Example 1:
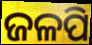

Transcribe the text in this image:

ଜଳପି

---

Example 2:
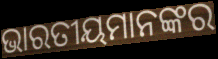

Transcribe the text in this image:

ଭାରତୀୟମାନଙ୍କର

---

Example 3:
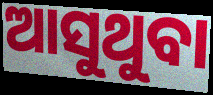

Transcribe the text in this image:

ଆସୁଥୁବା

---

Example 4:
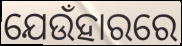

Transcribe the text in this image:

ଯେଉଁହାରରେ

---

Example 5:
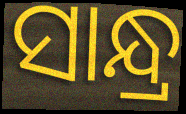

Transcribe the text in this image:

ସାନ୍ଧ୍ର